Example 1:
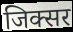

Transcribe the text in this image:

जिक्सर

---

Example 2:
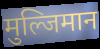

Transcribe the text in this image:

मुल्जिमान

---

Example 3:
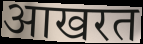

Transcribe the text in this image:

आखरत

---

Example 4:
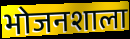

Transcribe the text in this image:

भोजनशाला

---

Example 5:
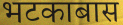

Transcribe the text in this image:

भटकाबास